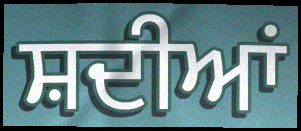
ਸ਼ਦੀਆਂ